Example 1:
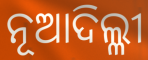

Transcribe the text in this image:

ନୂଆଦିଲ୍ଳୀ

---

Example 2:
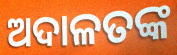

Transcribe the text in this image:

ଅଦାଳତଙ୍କ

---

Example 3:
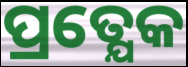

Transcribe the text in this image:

ପ୍ରତ୍ଯେକ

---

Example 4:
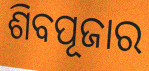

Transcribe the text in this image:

ଶିବପୂଜାର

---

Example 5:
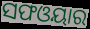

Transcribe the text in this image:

ସଫଓୟାର